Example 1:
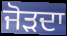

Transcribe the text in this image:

ਜੋੜਦਾ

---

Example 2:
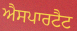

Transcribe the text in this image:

ਐਸਪਾਰਟੈਟ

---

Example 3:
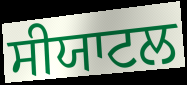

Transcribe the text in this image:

ਸੀਯਾਟਲ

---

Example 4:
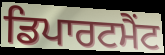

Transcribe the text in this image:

ਡਿਪਾਰਟਮੈਂਟ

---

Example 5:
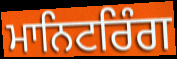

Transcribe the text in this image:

ਮਾਨਿਟਰਿੰਗ